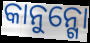
କାନୁନ୍ଗୋ